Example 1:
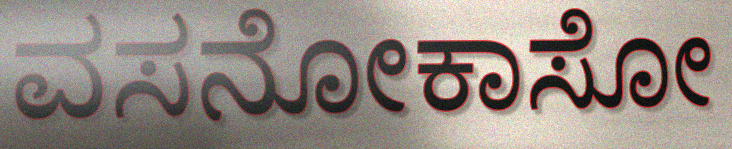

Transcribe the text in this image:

ವಸನೋಕಾಸೋ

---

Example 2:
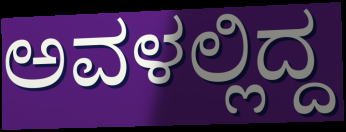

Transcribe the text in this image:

ಅವಳಲ್ಲಿದ್ದ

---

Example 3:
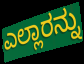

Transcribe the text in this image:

ಎಲ್ಲಾರನ್ನು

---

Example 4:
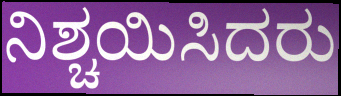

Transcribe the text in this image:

ನಿಶ್ಚಯಿಸಿದರು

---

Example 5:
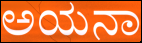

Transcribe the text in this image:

ಅಯನಾ